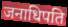
जनाधिपति